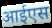
आईएस